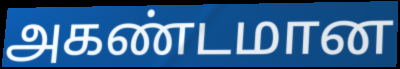
அகண்டமான